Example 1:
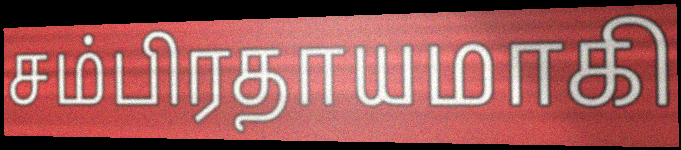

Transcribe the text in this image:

சம்பிரதாயமாகி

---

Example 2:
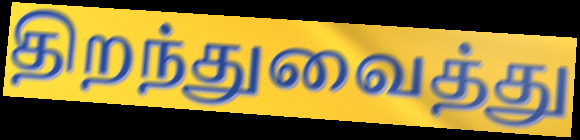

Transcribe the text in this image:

திறந்துவைத்து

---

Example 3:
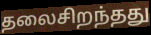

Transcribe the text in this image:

தலைசிறந்தது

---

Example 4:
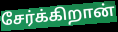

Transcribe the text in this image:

சேர்க்கிறான்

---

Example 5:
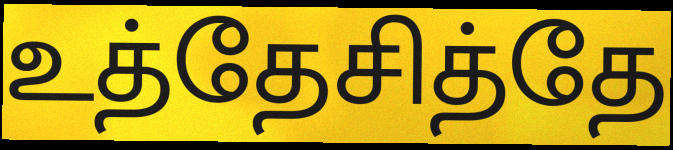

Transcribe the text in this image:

உத்தேசித்தே